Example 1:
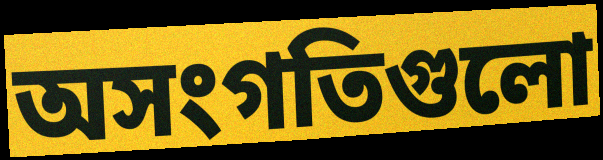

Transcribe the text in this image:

অসংগতিগুলো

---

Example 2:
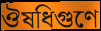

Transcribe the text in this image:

ঔষধিগুণে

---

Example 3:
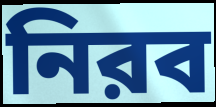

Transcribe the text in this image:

নিরব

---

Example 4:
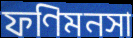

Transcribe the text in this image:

ফণিমনসা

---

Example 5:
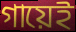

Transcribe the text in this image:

গায়েই